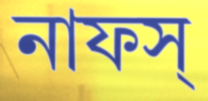
নাফস্